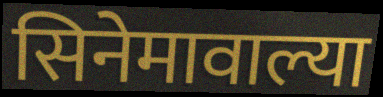
सिनेमावाल्या